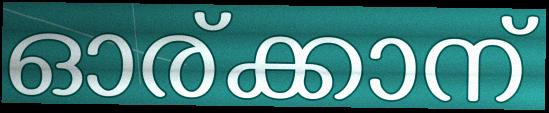
ഓര്ക്കാന്